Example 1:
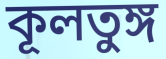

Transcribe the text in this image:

কূলতুঙ্গ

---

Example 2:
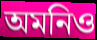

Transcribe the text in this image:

অমনিও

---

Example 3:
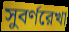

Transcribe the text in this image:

সুবর্ণরেখা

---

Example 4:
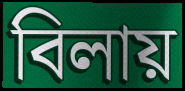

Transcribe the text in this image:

বিলায়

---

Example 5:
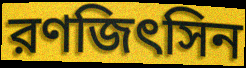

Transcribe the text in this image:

রণজিৎসিন